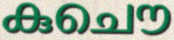
കുചൌ